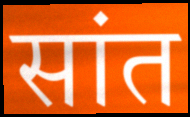
सांत